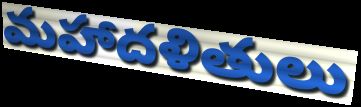
మహాదళితులు